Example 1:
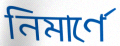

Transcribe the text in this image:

নিমার্ণে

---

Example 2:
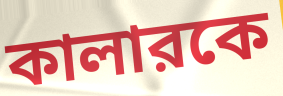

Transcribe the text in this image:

কালারকে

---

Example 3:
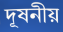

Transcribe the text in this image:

দূষনীয়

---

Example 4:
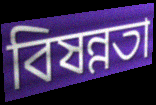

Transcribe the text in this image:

বিষন্নতা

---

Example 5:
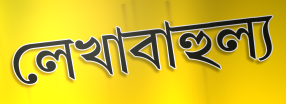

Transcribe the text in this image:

লেখাবাহুল্য